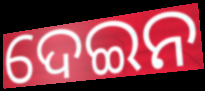
ଦେଇନ